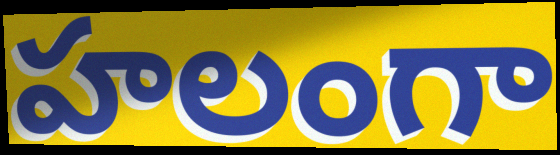
హలంగా